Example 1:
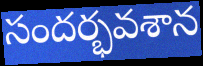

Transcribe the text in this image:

సందర్భవశాన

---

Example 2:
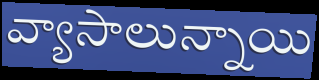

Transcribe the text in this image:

వ్యాసాలున్నాయి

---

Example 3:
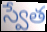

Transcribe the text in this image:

స్వేత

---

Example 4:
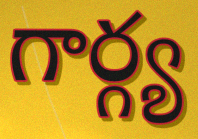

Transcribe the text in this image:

గార్గ్య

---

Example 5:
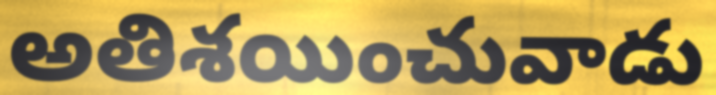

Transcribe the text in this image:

అతిశయించువాడు